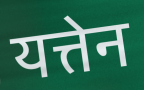
यत्तेन